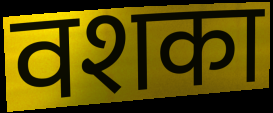
वशका